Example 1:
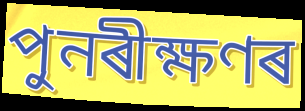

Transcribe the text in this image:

পুনৰীক্ষণৰ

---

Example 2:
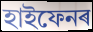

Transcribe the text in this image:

হাইফেনৰ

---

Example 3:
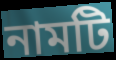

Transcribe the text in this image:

নামটি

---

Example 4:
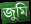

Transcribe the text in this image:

জুমি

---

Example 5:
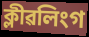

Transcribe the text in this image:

ক্লীৱলিংগ